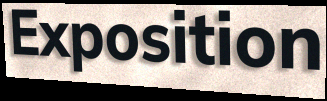
Exposition